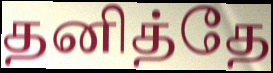
தனித்தே